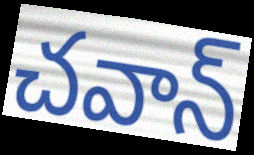
చవాన్